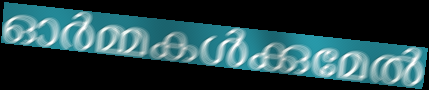
ഓർമ്മകൾക്കുമേൽ